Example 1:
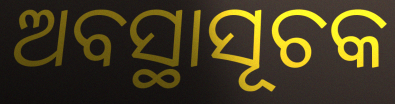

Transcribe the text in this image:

ଅବସ୍ଥାସୂଚକ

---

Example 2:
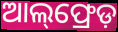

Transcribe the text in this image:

ଆଲ୍‌ଫ୍ରେଡ଼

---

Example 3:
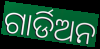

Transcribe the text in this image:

ଗାର୍ଡିଅନ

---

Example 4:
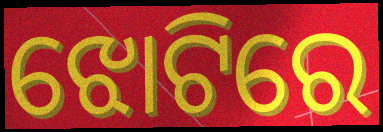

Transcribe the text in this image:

ଝୋଟିରେ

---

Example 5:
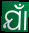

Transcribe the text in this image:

ଯାଁ